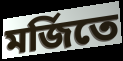
মর্জিতে